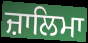
ਜ਼ਾਲਿਮਾ